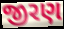
જીરણ